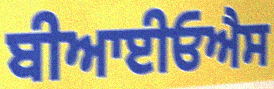
ਬੀਆਈਓਐਸ